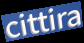
cittira